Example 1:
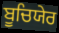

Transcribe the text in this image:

ਬੂਚਿਯੇਰ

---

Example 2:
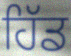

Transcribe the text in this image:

ਹਿੱਡ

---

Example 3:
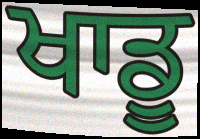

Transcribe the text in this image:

ਖਾਡੂ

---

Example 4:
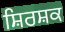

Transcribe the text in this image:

ਸ਼ਿਰਸ਼ਕ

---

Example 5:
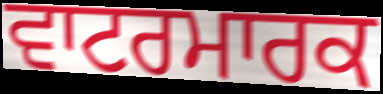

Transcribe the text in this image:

ਵਾਟਰਮਾਰਕ